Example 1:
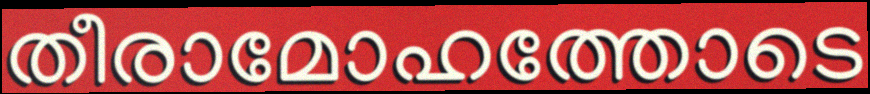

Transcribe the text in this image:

തീരാമോഹത്തോടെ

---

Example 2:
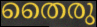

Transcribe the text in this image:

തൈരു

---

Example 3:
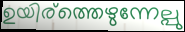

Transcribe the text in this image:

ഉയിര്ത്തെഴുന്നേല്പു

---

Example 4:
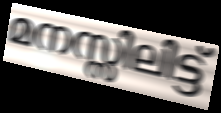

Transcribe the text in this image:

മനസ്സിലിട്ട്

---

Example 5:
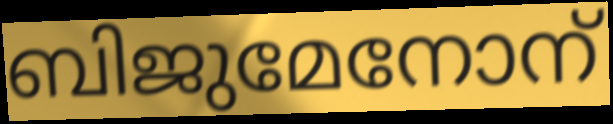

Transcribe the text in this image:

ബിജുമേനോന്